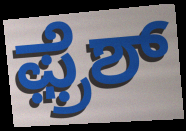
ಫ಼್ರೆಶ್